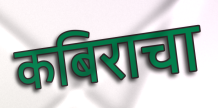
कबिराचा